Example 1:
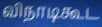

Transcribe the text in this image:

விநாடிகூட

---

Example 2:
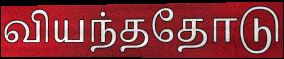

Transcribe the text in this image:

வியந்ததோடு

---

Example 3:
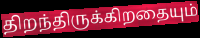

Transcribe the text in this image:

திறந்திருக்கிறதையும்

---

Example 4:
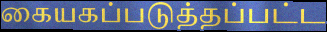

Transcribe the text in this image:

கையகப்படுத்தப்பட்ட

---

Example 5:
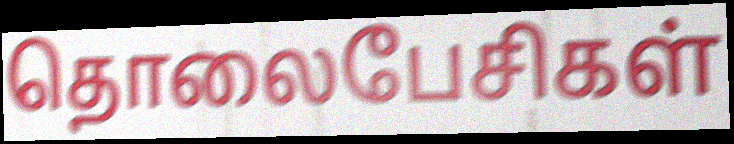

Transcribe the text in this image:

தொலைபேசிகள்